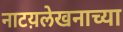
नाटय़लेखनाच्या